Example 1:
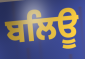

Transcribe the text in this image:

ਬਲਿਊ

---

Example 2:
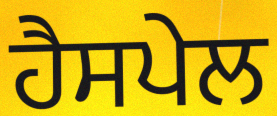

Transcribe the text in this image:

ਹੈਸਪੇਲ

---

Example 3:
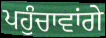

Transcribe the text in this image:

ਪਹੁੰਚਾਵਾਂਗੇ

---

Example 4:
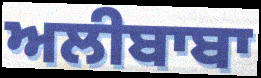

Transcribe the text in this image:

ਅਲੀਬਾਬਾ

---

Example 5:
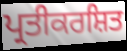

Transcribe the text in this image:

ਪ੍ਰਤੀਕਰਸ਼ਿਤ